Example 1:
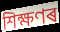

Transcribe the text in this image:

শিক্ষণৰ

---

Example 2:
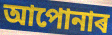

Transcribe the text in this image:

আপোনাৰ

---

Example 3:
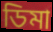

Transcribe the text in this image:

ডিমা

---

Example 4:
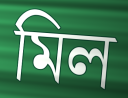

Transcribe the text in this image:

মিল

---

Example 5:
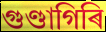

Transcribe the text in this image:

গুণ্ডাগিৰি